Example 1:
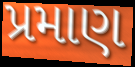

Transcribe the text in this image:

પ્રમાણ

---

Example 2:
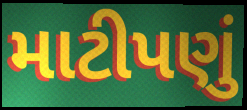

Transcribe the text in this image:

માટીપણું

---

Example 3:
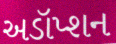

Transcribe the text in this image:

અડૉપ્શન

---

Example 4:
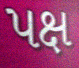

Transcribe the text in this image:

પક્ષ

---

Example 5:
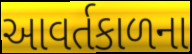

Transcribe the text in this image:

આવર્તકાળના